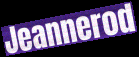
Jeannerod